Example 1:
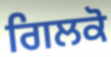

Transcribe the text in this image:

ਗਿਲਕੋ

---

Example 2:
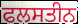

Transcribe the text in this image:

ਫਲਸਤੀਨ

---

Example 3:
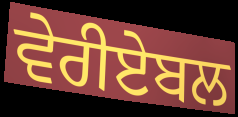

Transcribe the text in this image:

ਵੇਰੀਏਬਲ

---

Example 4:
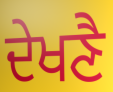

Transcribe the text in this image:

ਦੇਖਣੈ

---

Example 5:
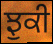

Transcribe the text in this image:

ਝੁਕੀ